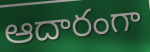
ఆదారంగా